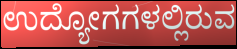
ಉದ್ಯೋಗಗಳಲ್ಲಿರುವ